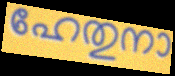
ഹേതുനാ